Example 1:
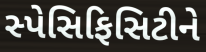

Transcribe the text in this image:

સ્પેસિફિસિટીને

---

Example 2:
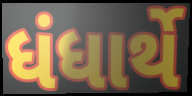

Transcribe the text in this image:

ધંધાર્થે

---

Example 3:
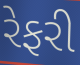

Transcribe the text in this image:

રેફરી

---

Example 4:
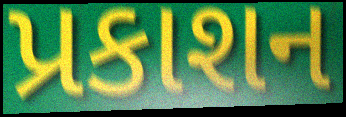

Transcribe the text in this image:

પ્રકાશન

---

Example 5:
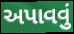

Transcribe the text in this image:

અપાવવું